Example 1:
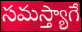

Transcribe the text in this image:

సమస్త్యాగే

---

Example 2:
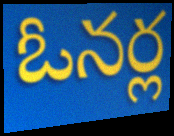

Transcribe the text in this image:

ఓనర్ల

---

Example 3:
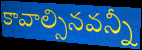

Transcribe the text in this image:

కావాల్సినవన్నీ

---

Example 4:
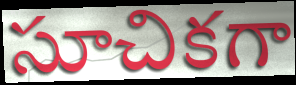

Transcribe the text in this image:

సూచికగా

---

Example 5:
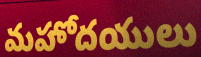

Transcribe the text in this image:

మహోదయులు